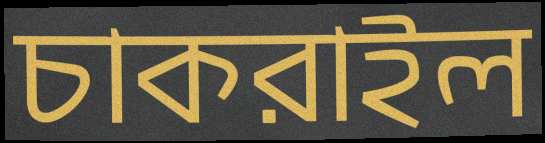
চাকরাইল